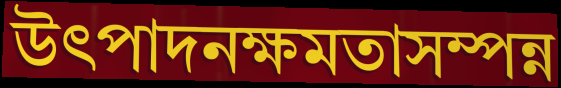
উৎপাদনক্ষমতাসম্পন্ন